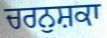
ਚਰਨੁਸ਼ਕਾ